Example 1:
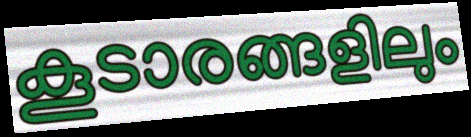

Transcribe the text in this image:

കൂടാരങ്ങളിലും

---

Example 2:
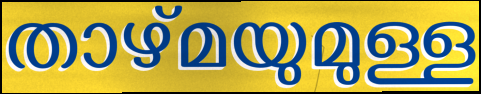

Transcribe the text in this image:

താഴ്മയുമുള്ള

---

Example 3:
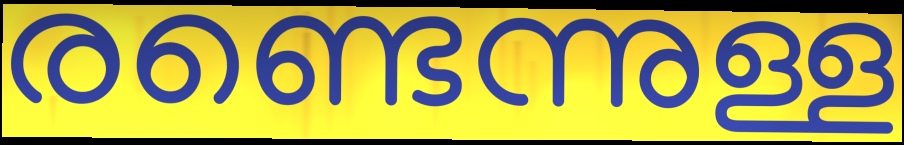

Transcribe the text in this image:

രണ്ടെന്നുള്ള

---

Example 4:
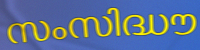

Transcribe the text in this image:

സംസിദ്ധൗ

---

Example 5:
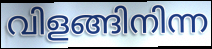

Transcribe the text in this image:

വിളങ്ങിനിന്ന